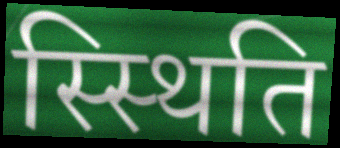
स्स्थिति